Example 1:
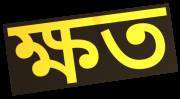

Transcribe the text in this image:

ক্ষত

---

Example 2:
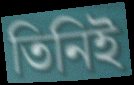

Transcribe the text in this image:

তিনিই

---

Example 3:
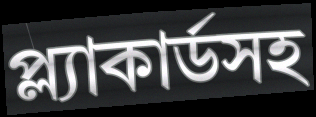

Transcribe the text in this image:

প্ল্যাকার্ডসহ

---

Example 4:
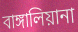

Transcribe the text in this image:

বাঙ্গালিয়ানা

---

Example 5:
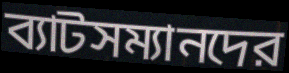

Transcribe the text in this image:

ব্যাটসম্যানদের